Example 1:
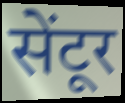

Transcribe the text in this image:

सेंटूर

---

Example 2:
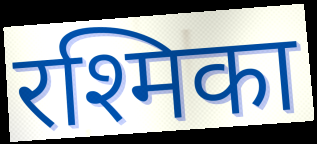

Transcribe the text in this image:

रश्मिका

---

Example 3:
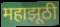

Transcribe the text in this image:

महाझूठी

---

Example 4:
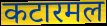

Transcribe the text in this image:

कटारमल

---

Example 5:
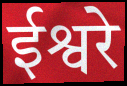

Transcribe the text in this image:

ईश्वरे